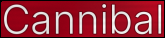
Cannibal